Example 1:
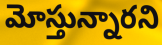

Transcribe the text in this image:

మోస్తున్నారని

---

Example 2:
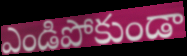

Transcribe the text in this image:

ఎండిపోకుండా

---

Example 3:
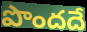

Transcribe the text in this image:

పొందదే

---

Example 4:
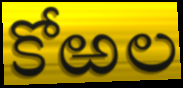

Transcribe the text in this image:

కోఱల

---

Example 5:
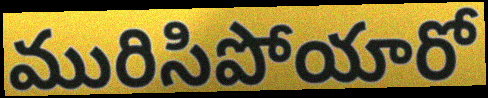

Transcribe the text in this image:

మురిసిపోయారో